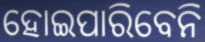
ହୋଇପାରିବେନି